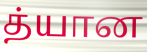
த்யான